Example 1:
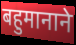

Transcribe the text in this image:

बहुमानाने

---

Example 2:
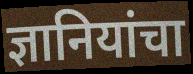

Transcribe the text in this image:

ज्ञानियांचा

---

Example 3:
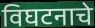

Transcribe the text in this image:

विघटनाचे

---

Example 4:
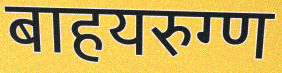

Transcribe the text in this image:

बाहयरुग्ण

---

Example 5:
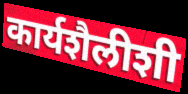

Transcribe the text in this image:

कार्यशैलीशी